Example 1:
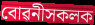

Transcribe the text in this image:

বোৱনীসকলক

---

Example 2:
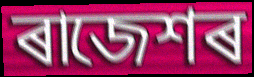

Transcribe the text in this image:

ৰাজেশৰ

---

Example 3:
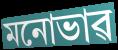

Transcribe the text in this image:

মনোভাৱ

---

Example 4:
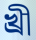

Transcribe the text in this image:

খ্ৰী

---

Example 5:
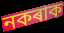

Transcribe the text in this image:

নকৰাক